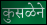
कुसळेने